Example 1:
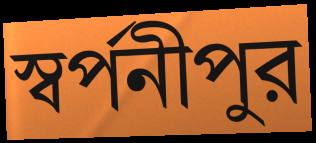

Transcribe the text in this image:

স্বর্পনীপুর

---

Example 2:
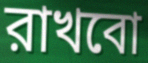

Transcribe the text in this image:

রাখবো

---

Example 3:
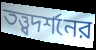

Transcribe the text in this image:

তত্ত্বদর্শনের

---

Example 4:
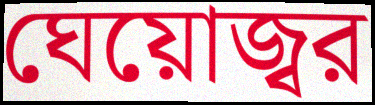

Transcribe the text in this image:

ঘেয়োজ্বর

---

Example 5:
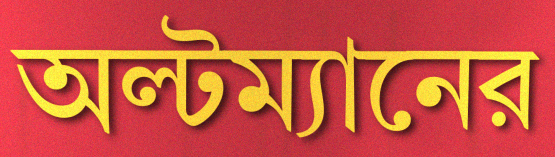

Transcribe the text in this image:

অল্টম্যানের